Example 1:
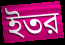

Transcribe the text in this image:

ইতর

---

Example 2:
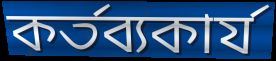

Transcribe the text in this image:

কর্তব্যকার্য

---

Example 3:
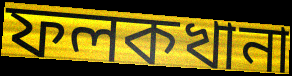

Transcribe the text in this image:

ফলকখানা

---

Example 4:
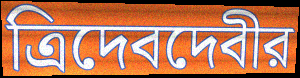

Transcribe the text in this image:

ত্রিদেবদেবীর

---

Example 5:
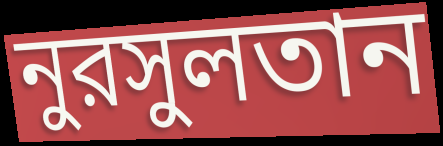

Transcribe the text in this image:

নুরসুলতান